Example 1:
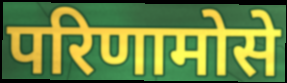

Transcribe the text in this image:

परिणामोसे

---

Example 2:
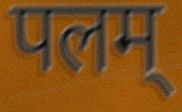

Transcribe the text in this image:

पलम्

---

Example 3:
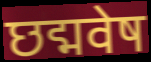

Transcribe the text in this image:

छद्मवेष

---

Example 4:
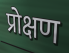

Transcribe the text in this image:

प्रोक्षण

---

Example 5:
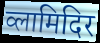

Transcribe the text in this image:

व्लामिदिर